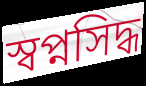
স্বপ্নসিদ্ধ